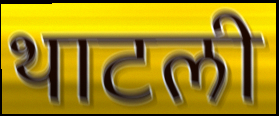
थाटली